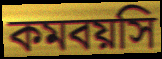
কমবয়সি